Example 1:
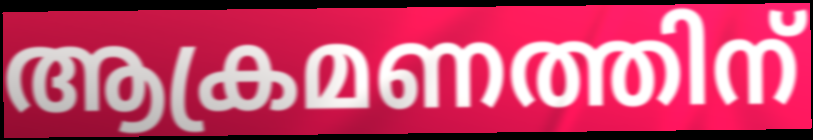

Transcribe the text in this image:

ആക്രമണത്തിന്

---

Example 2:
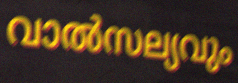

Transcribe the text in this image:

വാൽസല്യവും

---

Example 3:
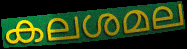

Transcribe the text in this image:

കലശമല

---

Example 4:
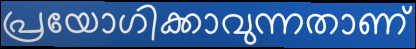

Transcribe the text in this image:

പ്രയോഗിക്കാവുന്നതാണ്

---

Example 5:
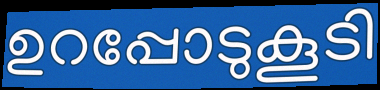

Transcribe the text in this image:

ഉറപ്പോടുകൂടി